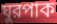
ঘুরপাক